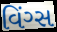
વિંગ્સ